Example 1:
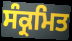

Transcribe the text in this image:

ਸੰਕ੍ਰਮਿਤ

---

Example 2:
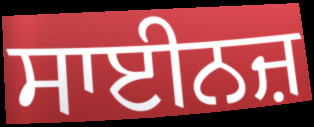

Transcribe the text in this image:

ਸਾਈਨਜ਼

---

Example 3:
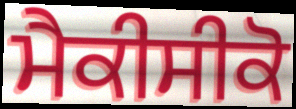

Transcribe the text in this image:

ਮੈਕੀਸੀਕੋ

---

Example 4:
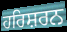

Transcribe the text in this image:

ਹਰਿਸ਼ਰਨ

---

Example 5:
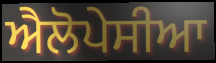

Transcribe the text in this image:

ਐਲੋਪੇਸੀਆ